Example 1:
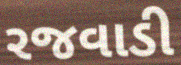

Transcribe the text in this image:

રજવાડી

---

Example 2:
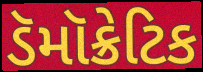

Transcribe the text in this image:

ડૅમૉક્રેટિક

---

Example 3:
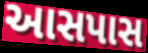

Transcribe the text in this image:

આસપાસ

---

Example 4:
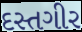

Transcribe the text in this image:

દસ્તગીર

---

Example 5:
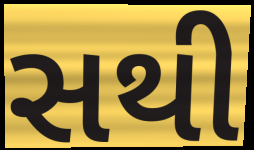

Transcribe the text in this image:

સથી